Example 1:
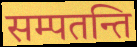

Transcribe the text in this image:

सम्पतन्ति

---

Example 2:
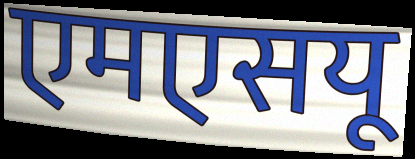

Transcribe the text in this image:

एमएसयू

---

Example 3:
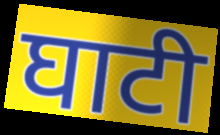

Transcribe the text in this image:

घाटी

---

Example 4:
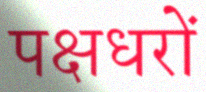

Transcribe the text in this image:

पक्षधरों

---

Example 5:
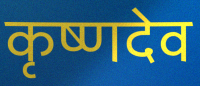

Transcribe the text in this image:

कृष्णदेव